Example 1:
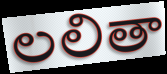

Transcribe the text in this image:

లలితా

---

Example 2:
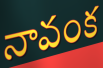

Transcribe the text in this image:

నావంక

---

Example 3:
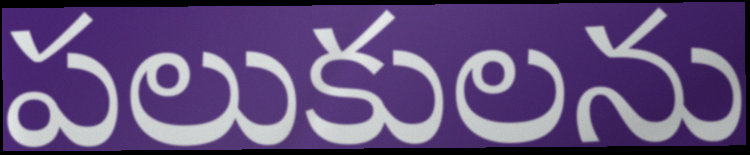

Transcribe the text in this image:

పలుకులను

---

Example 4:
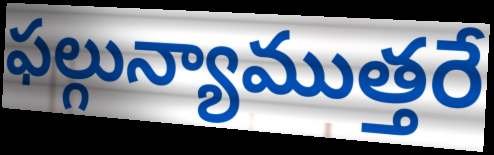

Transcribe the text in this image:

ఫల్గున్యాముత్తరే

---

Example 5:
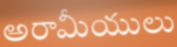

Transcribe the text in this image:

అరామీయులు